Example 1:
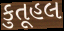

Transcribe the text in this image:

કુતૂહલ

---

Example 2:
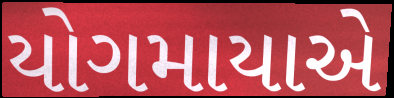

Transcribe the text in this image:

યોગમાયાએ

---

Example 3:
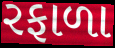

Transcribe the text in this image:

રફાળા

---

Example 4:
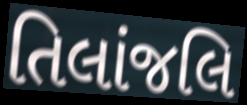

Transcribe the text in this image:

તિલાંજલિ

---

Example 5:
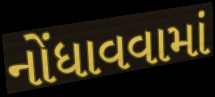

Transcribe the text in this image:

નોંધાવવામાં